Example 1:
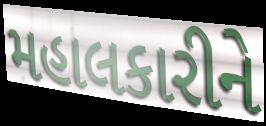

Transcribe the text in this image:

મહાલકારીને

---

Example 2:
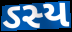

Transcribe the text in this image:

ઽસ્ય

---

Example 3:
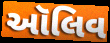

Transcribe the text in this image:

ઑલિવ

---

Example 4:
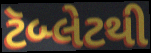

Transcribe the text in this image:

ટૅબ્લેટથી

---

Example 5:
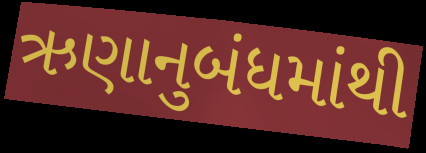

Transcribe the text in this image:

ઋણાનુબંધમાંથી